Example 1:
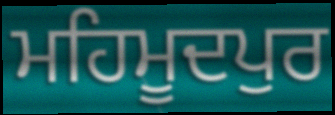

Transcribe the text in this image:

ਮਹਿਮੂਦਪੁਰ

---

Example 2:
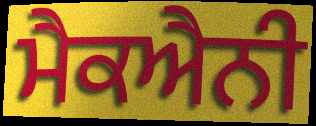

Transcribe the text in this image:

ਮੈਕਐਨੀ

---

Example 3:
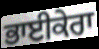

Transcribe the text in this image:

ਭਾਈਕੇਰਾ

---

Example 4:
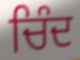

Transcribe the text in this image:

ਚਿੰਦ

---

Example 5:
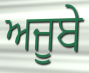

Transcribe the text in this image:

ਅਜੂਬੇ